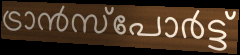
ട്രാൻസ്പോർട്ട്